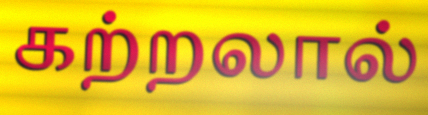
கற்றலால்